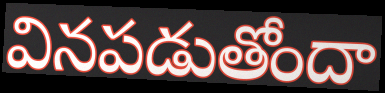
వినపడుతోందా